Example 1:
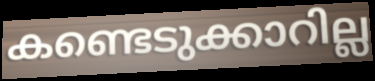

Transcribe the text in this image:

കണ്ടെടുക്കാറില്ല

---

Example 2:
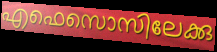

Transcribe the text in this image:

എഫെസൊസിലേക്കു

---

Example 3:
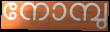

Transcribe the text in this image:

നോമ്പു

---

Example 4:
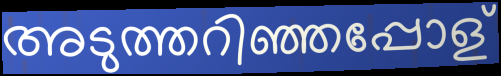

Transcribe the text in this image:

അടുത്തറിഞ്ഞപ്പോള്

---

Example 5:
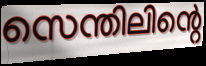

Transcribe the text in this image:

സെന്തിലിന്റെ